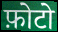
फ़ोटो